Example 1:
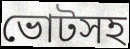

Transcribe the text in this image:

ভোটসহ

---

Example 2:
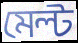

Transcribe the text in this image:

মেল্ট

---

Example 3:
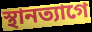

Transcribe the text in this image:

স্থানত্যাগে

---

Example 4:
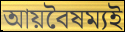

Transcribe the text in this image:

আয়বৈষম্যই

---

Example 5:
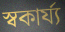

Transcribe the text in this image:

স্বকার্য্য